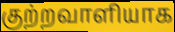
குற்றவாளியாக